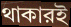
থাকারই